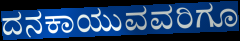
ದನಕಾಯುವವರಿಗೂ